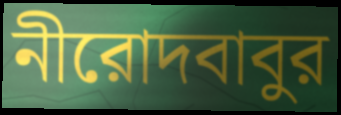
নীরোদবাবুর